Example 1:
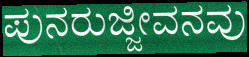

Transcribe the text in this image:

ಪುನರುಜ್ಜೀವನವು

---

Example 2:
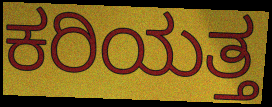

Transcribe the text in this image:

ಕರಿಯತ್ತ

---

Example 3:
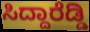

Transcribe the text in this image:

ಸಿದ್ದಾರೆಡ್ಡಿ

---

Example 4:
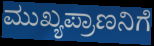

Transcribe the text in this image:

ಮುಖ್ಯಪ್ರಾಣನಿಗೆ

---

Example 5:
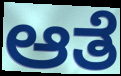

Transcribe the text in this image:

ಆತೆ